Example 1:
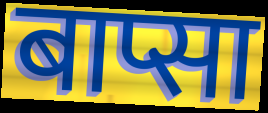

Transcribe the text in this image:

बाप्सा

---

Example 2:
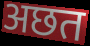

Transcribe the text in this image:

अछत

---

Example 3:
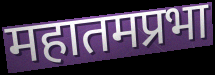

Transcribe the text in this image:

महातमप्रभा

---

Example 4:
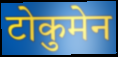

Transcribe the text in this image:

टोकुमेन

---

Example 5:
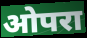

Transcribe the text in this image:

ओपरा